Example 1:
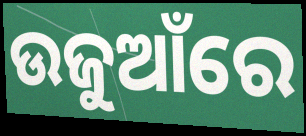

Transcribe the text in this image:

ଉଜୁଆଁରେ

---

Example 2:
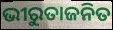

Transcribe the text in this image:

ଭୀରୁତାଜନିତ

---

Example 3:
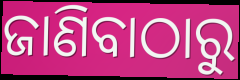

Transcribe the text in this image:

ଜାଣିବାଠାରୁ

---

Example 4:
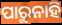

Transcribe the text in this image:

ପାରୁନାହି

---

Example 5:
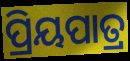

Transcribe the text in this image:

ପ୍ରିୟପାତ୍ର